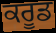
ਕਰੂਡ